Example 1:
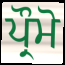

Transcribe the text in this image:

ਪ੍ਰੌਮੋ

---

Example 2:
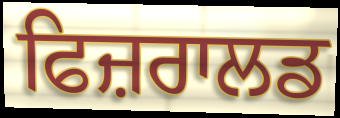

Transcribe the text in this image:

ਫਿਜ਼ਰਾਲਡ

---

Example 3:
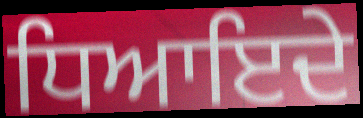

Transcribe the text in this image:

ਧਿਆਇਦੇ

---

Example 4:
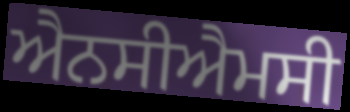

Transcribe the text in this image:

ਐਨਸੀਐਮਸੀ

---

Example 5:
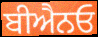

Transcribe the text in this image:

ਬੀਐਨਓ